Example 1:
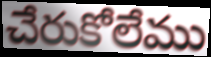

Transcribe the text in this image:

చేరుకోలేము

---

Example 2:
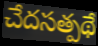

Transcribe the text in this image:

చేదసత్పథే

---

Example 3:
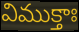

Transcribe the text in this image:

విముక్తాః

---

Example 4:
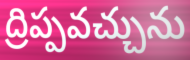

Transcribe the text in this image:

ద్రిప్పవచ్చును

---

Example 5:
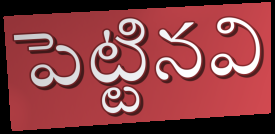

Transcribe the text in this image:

పెట్టినవి